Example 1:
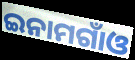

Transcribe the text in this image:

ଇନାମଗାଁଓ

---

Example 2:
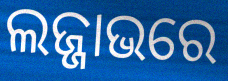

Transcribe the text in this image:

ଲଜ୍ଜାଭରେ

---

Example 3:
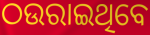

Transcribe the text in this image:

ଠଉରାଇଥିବେ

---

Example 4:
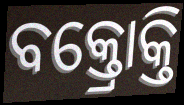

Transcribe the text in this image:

ବକ୍ତ୍ରୋକ୍ତି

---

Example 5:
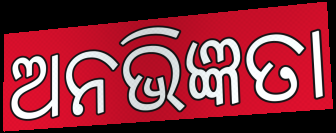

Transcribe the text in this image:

ଅନଭିଜ୍ଞତା